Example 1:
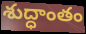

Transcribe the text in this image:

శుద్ధాంతం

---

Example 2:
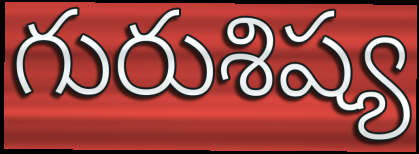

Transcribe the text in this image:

గురుశిష్య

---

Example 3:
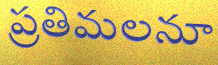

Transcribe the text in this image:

ప్రతిమలనూ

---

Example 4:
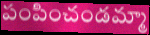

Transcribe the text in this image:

పంపించండమ్మా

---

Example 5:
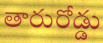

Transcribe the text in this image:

తారురోడ్డు